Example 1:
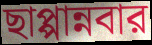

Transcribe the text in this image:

ছাপ্পান্নবার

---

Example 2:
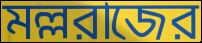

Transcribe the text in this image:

মল্লরাজের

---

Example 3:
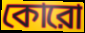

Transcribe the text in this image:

কোরো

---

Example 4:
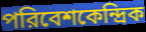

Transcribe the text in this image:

পরিবেশকেন্দ্রিক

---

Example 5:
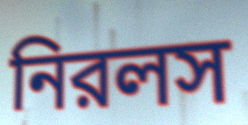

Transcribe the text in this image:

নিরলস